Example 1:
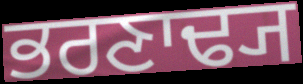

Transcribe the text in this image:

ਭਰਣਾਢ੍ਯ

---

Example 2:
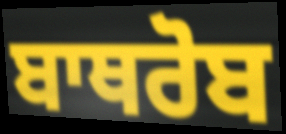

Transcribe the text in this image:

ਬਾਥਰੋਬ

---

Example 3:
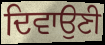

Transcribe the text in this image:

ਦਿਵਾਉਣੀ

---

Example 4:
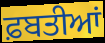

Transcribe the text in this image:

ਫ਼ਬਤੀਆਂ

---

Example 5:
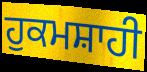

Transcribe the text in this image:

ਹੁਕਮਸ਼ਾਹੀ